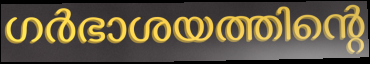
ഗർഭാശയത്തിന്റെ